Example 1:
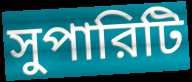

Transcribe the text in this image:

সুপারিটি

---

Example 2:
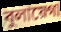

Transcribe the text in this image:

বুলায়েগা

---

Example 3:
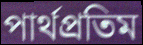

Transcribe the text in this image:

পার্থপ্রতিম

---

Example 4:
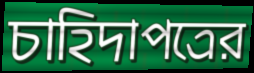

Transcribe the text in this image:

চাহিদাপত্রের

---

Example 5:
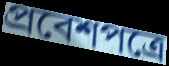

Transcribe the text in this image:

প্রবেশপত্রে